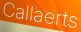
Callaerts